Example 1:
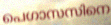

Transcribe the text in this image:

പെഗാസസിനെ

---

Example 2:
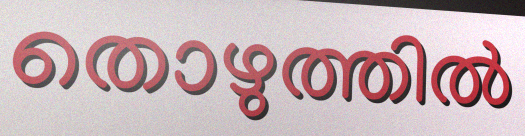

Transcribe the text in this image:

തൊഴുത്തിൽ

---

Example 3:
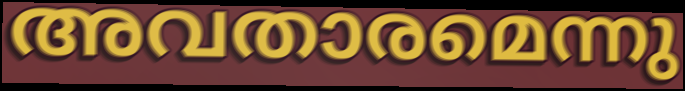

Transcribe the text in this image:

അവതാരമെന്നു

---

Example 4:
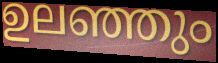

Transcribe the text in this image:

ഉലഞ്ഞും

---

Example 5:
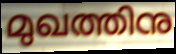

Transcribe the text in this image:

മുഖത്തിനു